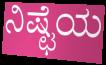
ನಿಷ್ಟೆಯ